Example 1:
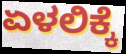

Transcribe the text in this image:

ಏಳಲಿಕ್ಕೆ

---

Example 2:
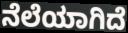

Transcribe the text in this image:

ನೆಲೆಯಾಗಿದೆ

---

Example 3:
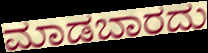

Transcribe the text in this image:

ಮಾಡಬಾರದು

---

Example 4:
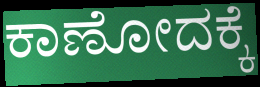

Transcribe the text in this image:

ಕಾಣೋದಕ್ಕೆ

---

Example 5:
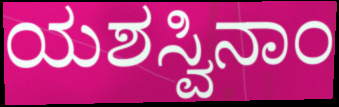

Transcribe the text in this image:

ಯಶಸ್ವಿನಾಂ